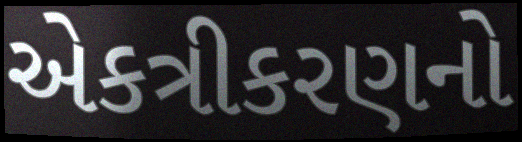
એકત્રીકરણનો